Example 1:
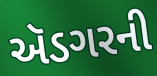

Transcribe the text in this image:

ઍડગરની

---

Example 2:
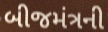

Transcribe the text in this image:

બીજમંત્રની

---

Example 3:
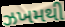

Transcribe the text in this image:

ઝખમથી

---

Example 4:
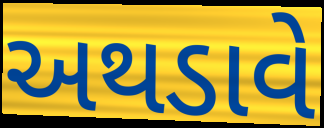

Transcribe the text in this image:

અથડાવે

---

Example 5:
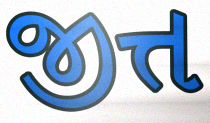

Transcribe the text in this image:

જીત્ત